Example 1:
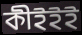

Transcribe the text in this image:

কীইইই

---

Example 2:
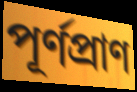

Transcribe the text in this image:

পূর্ণপ্রাণ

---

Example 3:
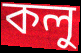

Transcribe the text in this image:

কলু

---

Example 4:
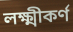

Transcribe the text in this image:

লক্ষ্মীকর্ণ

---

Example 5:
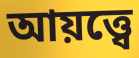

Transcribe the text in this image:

আয়ত্ত্বে